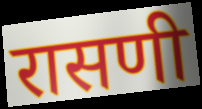
रासणी